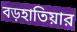
বড়হাতিয়ার